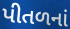
પીતળનાં